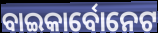
ବାଇକାର୍ବୋନେଟ